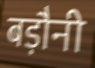
बड़ौनी